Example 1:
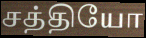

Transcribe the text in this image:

சத்தியோ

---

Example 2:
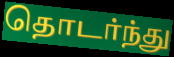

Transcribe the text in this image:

தொடர்ந்து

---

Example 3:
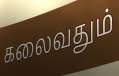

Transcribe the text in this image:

கலைவதும்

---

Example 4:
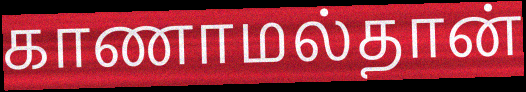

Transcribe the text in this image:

காணாமல்தான்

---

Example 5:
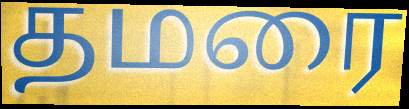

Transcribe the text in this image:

தமரை